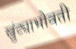
खुंट्याभोवती